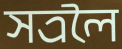
সত্ৰলৈ